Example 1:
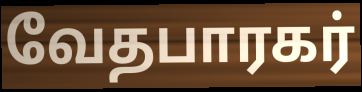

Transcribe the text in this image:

வேதபாரகர்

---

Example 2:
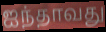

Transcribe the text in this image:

ஐந்தாவது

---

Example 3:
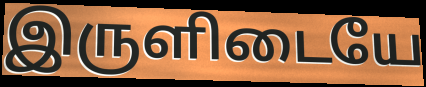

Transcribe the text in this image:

இருளிடையே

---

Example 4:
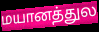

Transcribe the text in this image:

மயானத்துல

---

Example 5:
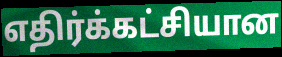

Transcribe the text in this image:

எதிர்க்கட்சியான